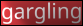
gargling